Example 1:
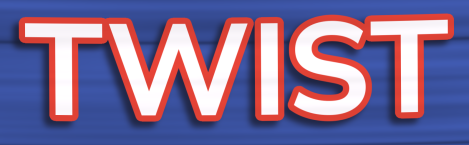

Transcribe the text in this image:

TWIST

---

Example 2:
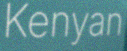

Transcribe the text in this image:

Kenyan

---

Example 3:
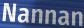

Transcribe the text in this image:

Nannan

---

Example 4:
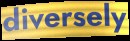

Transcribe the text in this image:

diversely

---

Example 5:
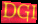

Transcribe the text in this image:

DGI